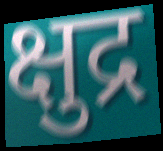
क्षुद्र